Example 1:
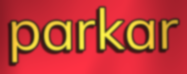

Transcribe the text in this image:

parkar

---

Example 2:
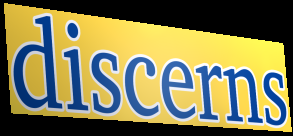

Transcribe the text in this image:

discerns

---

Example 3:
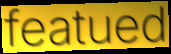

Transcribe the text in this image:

featued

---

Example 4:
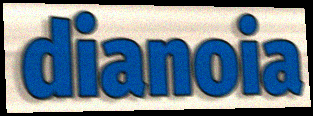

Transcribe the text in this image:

dianoia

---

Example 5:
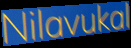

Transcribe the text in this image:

Nilavukal